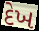
દેખ